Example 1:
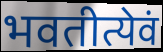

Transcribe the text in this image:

भवतीत्येवं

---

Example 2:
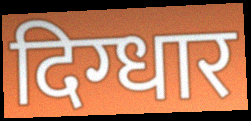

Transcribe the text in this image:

दिग्धार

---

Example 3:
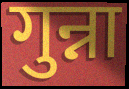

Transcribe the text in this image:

गुन्ना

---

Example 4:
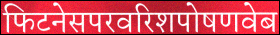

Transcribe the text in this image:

फिटनेसपरवरिशपोषणवेब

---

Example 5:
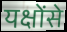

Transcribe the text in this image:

यक्षोंसे